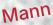
Mann